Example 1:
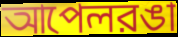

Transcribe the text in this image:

আপেলরঙা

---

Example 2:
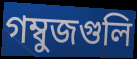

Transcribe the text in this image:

গম্বুজগুলি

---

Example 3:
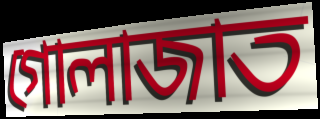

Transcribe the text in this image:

গোলাজাত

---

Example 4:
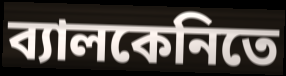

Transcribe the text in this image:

ব্যালকেনিতে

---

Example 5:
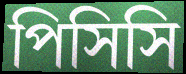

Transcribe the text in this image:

পিসিসি